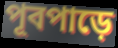
পূবপাড়ে